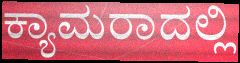
ಕ್ಯಾಮರಾದಲ್ಲಿ